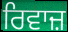
ਰਿਵਾਜ਼